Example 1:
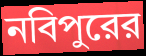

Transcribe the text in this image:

নবিপুরের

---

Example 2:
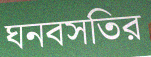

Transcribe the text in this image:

ঘনবসতির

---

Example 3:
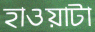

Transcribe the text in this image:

হাওয়াটা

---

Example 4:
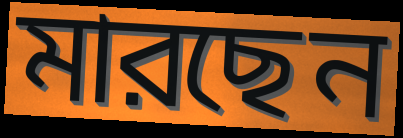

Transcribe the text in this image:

মারছেন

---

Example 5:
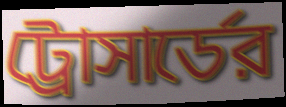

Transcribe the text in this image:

ট্রোসার্ডের